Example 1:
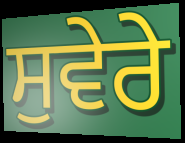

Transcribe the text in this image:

ਸੁਵੇਰੇ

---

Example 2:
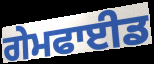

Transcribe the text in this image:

ਗੇਮਫਾਈਡ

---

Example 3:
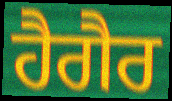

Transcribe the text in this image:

ਹੈਗੈਰ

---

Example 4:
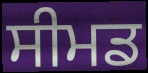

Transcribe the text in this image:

ਸੀਮਡ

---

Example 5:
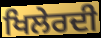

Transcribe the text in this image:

ਖਿਲੇਰਦੀ